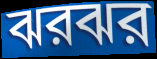
ঝরঝর